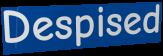
Despised